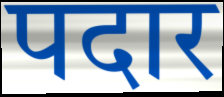
पदार